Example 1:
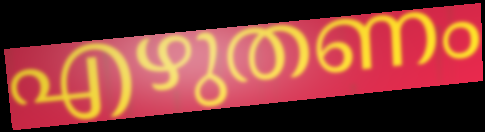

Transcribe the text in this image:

എഴുതണം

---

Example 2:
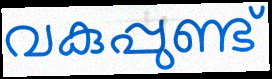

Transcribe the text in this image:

വകുപ്പുണ്ട്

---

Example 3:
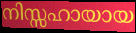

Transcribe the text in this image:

നിസ്സഹായായ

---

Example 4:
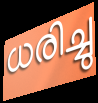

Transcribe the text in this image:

ധരിച്ചു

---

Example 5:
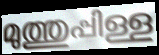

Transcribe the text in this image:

മുത്തുപ്പിള്ള